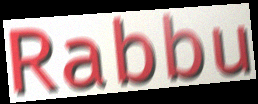
Rabbu